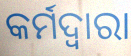
କର୍ମଦ୍ବାରା